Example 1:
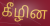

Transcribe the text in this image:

கீழின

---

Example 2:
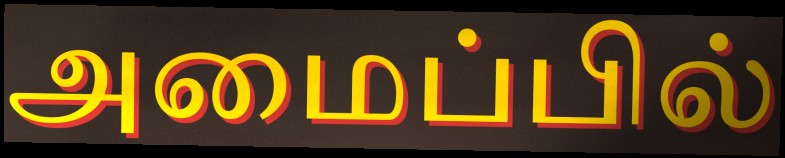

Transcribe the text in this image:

அமைப்பில்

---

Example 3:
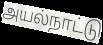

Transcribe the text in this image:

அயல்நாட்டு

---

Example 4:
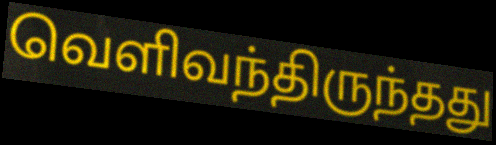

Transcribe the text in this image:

வெளிவந்திருந்தது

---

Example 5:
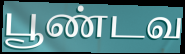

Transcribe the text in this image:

பூண்டவ